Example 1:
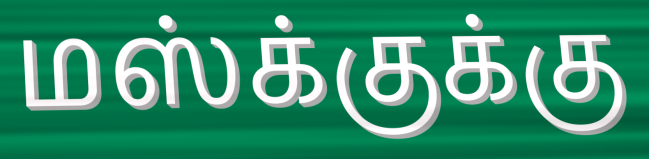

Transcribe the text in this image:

மஸ்க்குக்கு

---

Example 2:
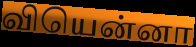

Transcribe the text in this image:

வியென்னா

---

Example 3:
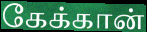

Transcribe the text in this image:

கேக்கான்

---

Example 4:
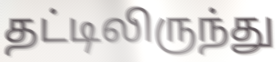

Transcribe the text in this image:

தட்டிலிருந்து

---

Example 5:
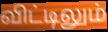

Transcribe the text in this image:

விட்டிலும்